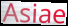
Asiae